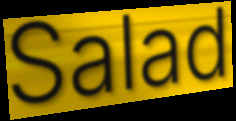
Salad